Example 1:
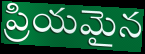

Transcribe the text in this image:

ప్రియమైన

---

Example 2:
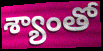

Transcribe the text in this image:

శ్యాంతో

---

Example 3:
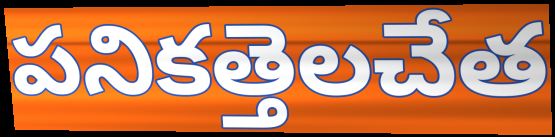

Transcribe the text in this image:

పనికత్తెలచేత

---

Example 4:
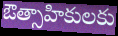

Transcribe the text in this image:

ఔత్సాహికులకు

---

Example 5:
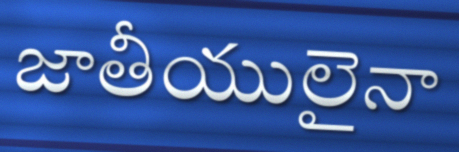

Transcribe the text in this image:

జాతీయులైనా